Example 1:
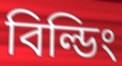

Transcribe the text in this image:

বিল্ডিং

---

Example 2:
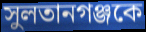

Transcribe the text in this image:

সুলতানগঞ্জকে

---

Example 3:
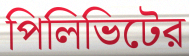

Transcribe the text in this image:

পিলিভিটের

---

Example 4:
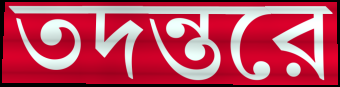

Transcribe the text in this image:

তদন্তরে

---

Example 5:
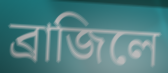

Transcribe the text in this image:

ব্রাজিলে